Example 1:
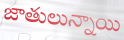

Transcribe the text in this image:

జాతులున్నాయి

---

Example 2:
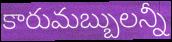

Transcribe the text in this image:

కారుమబ్బులన్నీ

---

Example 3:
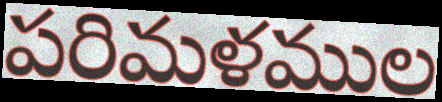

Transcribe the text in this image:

పరిమళముల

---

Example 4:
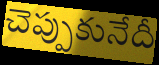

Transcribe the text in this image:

చెప్పుకునేదీ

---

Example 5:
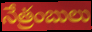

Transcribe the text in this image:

నేత్రంబులు